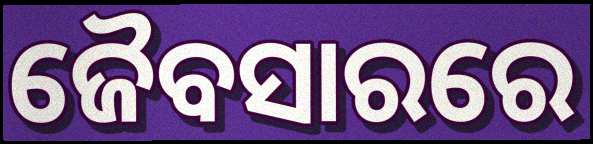
ଜୈବସାରରେ